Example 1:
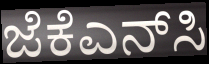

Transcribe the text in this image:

ಜೆಕೆಎನ್‌ಸಿ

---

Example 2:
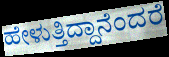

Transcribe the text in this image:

ಹೇಳುತ್ತಿದ್ದಾನೆಂದರೆ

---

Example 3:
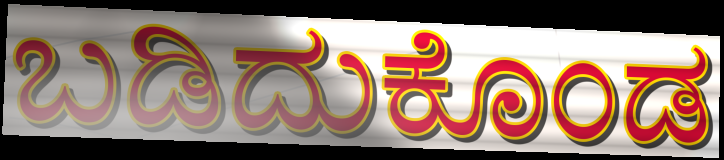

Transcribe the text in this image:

ಬಡಿದುಕೊಂಡ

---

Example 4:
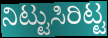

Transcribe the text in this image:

ನಿಟ್ಟುಸಿರಿಟ್ಟ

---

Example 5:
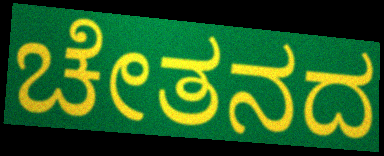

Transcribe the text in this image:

ಚೇತನದ